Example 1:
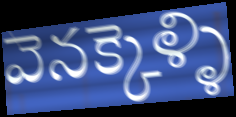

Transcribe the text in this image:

వెనక్కెళ్ళి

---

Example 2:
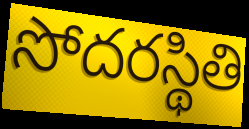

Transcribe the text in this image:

సోదరస్థితి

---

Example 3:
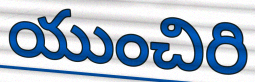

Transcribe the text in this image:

యుంచిరి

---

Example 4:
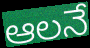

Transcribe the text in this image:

ఆలనే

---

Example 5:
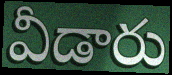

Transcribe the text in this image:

వీడారు